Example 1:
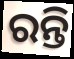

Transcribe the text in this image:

ରନ୍ତି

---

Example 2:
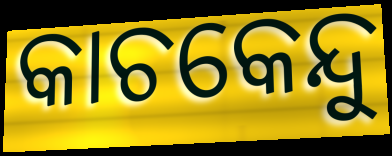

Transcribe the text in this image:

କାଚକେନ୍ଦୁ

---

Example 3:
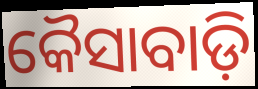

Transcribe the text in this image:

କୈସାବାଡ଼ି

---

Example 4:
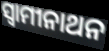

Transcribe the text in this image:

ସ୍ବାମୀନାଥନ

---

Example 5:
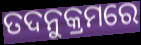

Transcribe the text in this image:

ତଦନୁକ୍ରମରେ